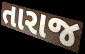
તારાજ